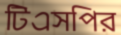
টিএসপির